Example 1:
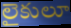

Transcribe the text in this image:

లైకులూ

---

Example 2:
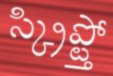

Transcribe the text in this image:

స్క్రిప్ట్తో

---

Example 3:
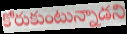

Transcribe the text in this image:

కోరుకుంటున్నాడని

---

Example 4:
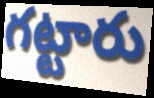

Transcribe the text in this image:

గట్టారు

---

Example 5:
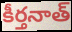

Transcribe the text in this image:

కీర్తనాత్